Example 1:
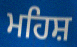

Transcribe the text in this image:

ਮਹਿਸ਼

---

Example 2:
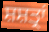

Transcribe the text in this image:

ਸ਼ਸ਼ਤ੍ਰਾਂ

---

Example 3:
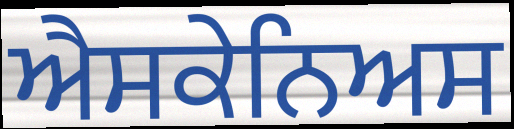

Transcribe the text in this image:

ਐਸਕੇਨਿਅਸ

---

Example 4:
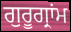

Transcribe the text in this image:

ਗੁਰੂਗ੍ਰਾਂਮ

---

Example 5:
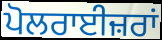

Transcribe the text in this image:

ਪੋਲਰਾਈਜ਼ਰਾਂ